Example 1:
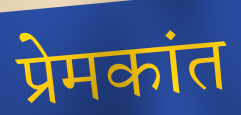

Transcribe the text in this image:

प्रेमकांत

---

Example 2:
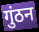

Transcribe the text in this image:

गुंठन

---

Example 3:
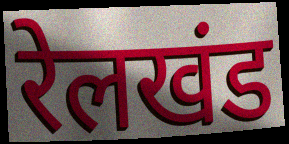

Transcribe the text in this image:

रेलखंड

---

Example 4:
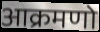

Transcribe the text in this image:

आक्रमणो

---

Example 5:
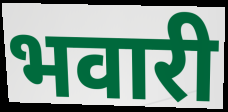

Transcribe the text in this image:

भवारी